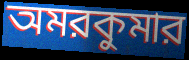
অমরকুমার